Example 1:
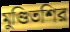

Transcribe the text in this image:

মুণ্ডিতশির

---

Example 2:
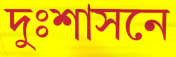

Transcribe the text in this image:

দুঃশাসনে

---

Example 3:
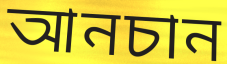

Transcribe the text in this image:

আনচান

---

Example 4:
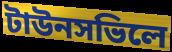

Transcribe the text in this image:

টাউনসভিলে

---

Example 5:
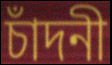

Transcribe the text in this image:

চাঁদনী